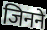
जिनने